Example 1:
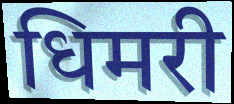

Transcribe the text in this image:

धिमरी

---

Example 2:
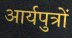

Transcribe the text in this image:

आर्यपुत्रों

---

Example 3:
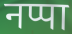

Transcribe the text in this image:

नप्पा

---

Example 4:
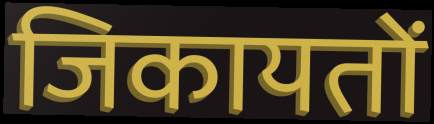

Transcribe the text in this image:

जिकायतों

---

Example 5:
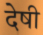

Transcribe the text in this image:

देषी